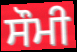
ਸੌਮੀ